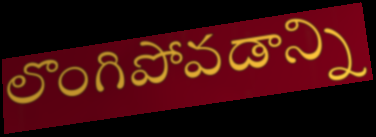
లొంగిపోవడాన్ని